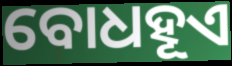
ବୋଧହୂଏ